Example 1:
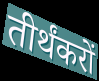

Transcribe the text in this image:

तीर्थंकरों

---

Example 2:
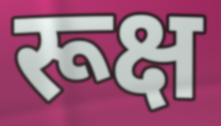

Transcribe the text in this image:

रूक्ष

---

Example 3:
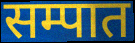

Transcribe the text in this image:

सम्पात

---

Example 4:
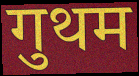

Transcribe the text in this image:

गुथम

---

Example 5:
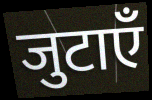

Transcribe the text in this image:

जुटाएँ